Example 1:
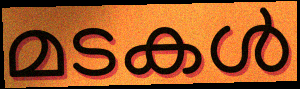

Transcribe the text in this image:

മടകൾ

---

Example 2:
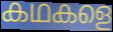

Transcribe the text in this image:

കഥകളെ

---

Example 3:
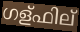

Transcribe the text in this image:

ഗള്ഫില്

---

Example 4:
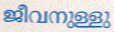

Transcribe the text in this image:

ജീവനുള്ളു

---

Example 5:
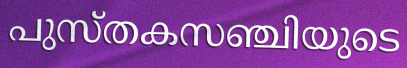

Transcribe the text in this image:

പുസ്തകസഞ്ചിയുടെ